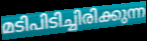
മടിപിടിച്ചിരിക്കുന്ന